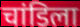
चांडिला